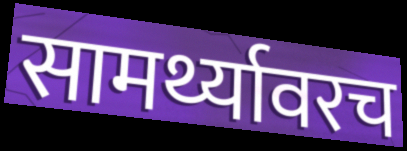
सामर्थ्यावरच